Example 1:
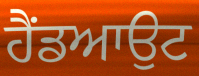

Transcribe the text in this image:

ਹੈਂਡਆਉਟ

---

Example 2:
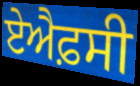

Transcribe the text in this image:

ਏਐਫ਼ਸੀ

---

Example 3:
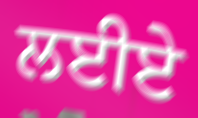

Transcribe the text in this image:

ਲਈਏ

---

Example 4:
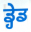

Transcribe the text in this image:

ਡ੍ਹੇਡ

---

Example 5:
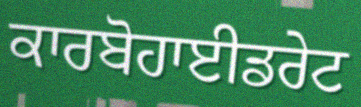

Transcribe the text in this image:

ਕਾਰਬੋਹਾਈਡਰੇਟ